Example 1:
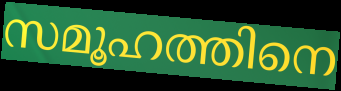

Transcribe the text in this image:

സമൂഹത്തിനെ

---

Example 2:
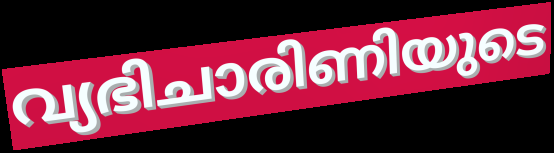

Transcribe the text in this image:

വ്യഭിചാരിണിയുടെ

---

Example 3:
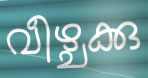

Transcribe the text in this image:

വീഴ്ചക്കു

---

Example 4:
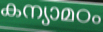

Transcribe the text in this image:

കന്യാമഠം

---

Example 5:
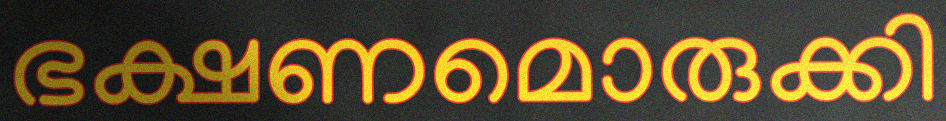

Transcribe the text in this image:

ഭക്ഷണമൊരുക്കി